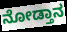
ನೋಡ್ತಾನ